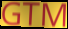
GTM